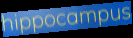
hippocampus